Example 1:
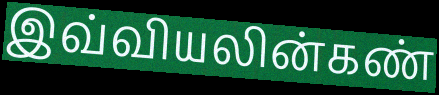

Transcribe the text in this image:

இவ்வியலின்கண்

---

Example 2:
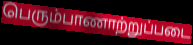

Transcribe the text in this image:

பெரும்பாணாற்றுப்படை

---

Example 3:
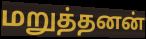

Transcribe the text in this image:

மறுத்தனன்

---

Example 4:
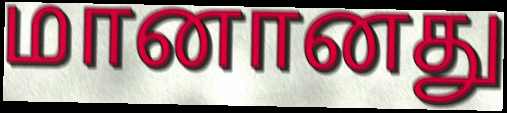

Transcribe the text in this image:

மானானது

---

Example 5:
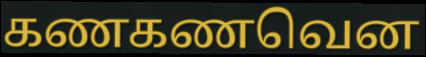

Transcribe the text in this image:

கணகணவென